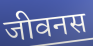
जीवनस